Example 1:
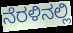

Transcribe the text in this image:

ನೆರಳಿನಲ್ಲಿ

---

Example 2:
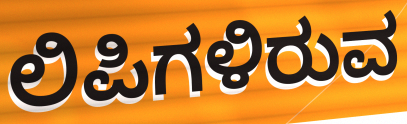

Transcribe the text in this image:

ಲಿಪಿಗಳಿರುವ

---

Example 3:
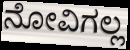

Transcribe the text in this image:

ನೋವಿಗಲ್ಲ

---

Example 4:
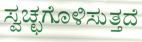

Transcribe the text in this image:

ಸ್ವಚ್ಛಗೊಳಿಸುತ್ತದೆ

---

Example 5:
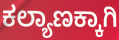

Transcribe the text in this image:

ಕಲ್ಯಾಣಕ್ಕಾಗಿ